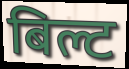
बिल्ट